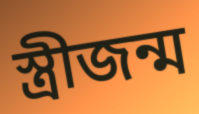
স্ত্রীজন্ম